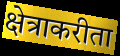
क्षेत्राकरीता